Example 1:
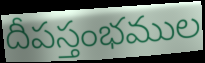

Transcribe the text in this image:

దీపస్తంభముల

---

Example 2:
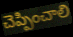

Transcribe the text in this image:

చెప్పించాలి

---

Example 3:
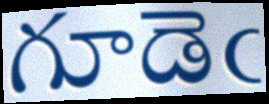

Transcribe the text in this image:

గూడెఁ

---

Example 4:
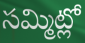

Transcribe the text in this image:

సమ్మిట్లో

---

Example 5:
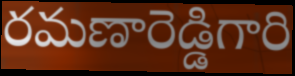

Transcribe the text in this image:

రమణారెడ్డిగారి